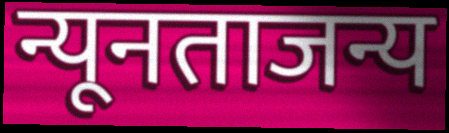
न्यूनताजन्य